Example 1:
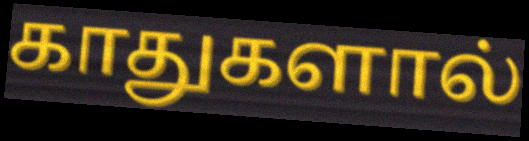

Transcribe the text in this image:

காதுகளால்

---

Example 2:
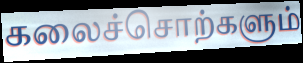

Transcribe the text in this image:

கலைச்சொற்களும்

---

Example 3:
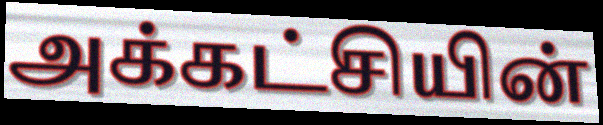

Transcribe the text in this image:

அக்கட்சியின்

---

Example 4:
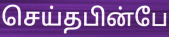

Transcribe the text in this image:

செய்தபின்பே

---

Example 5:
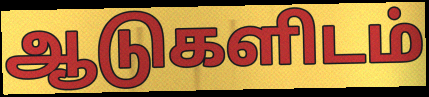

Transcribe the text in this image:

ஆடுகளிடம்